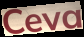
Ceva